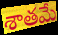
శాతమే